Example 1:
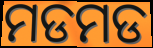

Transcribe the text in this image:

ମଡମଡ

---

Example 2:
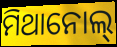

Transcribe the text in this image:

ମିଥାନୋଲ୍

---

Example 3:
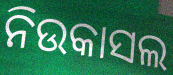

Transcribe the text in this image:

ନିଉକାସଲ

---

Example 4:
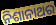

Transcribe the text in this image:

ନିଶାନାଥର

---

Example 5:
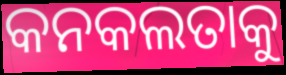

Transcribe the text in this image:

କନକଲତାକୁ